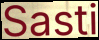
Sasti